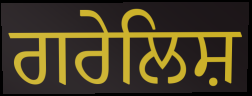
ਗਰੇਲਿਸ਼